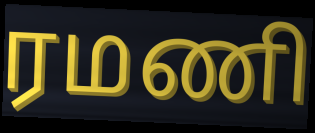
ரமணி